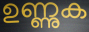
ഉണ്ണുക